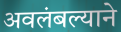
अवलंबल्याने